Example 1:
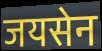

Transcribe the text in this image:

जयसेन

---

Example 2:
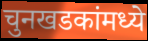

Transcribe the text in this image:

चुनखडकांमध्ये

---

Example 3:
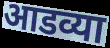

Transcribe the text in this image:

आडव्या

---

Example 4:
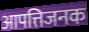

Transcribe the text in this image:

आपत्तिजनक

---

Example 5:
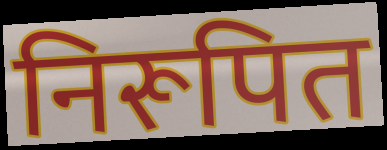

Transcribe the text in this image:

निरूपित